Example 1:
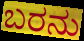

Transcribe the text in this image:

ಬರನು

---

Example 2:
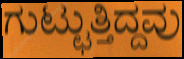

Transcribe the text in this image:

ಗುಟ್ಟುತ್ತಿದ್ದವು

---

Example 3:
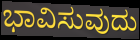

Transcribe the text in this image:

ಭಾವಿಸುವುದು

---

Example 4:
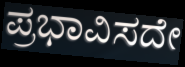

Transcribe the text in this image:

ಪ್ರಭಾವಿಸದೇ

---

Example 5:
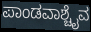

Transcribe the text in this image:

ಪಾಂಡವಾಶ್ಚೈವ